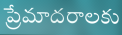
ప్రేమాదరాలకు